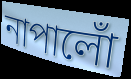
নাপালোঁ